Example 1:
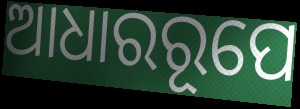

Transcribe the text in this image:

ଆଧାରରୂପେ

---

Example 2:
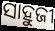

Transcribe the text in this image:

ସାହୁଜୀ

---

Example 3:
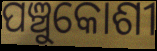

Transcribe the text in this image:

ପଞ୍ଚୁକୋଶୀ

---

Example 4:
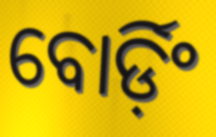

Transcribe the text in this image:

ବୋର୍ଡ଼ିଂ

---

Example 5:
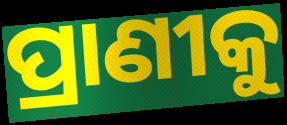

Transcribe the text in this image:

ପ୍ରାଣୀକୁ